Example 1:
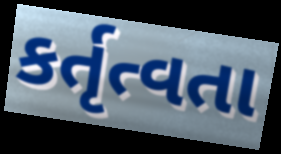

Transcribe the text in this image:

કર્તૃત્વતા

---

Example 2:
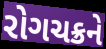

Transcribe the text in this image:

રોગચક્રને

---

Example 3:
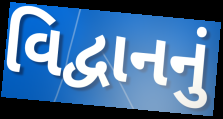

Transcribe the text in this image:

વિદ્વાનનું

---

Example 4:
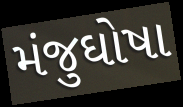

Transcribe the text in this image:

મંજુઘોષા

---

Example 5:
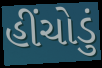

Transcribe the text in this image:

હીંચોડું